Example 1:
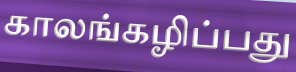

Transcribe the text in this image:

காலங்கழிப்பது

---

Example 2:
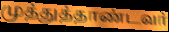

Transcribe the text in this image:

முத்துத்தாண்டவர்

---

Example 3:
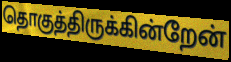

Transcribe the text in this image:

தொகுத்திருக்கின்றேன்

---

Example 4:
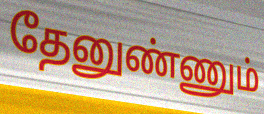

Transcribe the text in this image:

தேனுண்ணும்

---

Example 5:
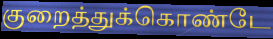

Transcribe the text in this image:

குறைத்துக்கொண்டே